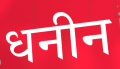
धनीन